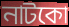
নাটকো